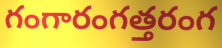
గంగారంగత్తరంగ